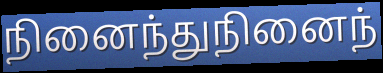
நினைந்துநினைந்